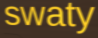
swaty